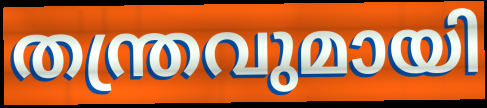
തന്ത്രവുമായി